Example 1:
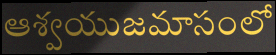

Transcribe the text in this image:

ఆశ్వయుజమాసంలో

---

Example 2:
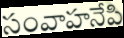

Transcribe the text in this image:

సంవాహనేపి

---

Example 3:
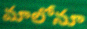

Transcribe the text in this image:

మాలోనూ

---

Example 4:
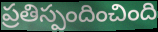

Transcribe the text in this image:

ప్రతిస్పందించింది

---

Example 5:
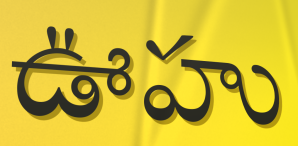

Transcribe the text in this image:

ఊహు